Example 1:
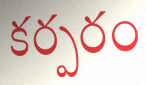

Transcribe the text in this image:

కర్పరం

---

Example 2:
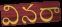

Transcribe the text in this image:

వినరా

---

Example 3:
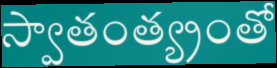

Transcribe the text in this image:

స్వాతంత్య్రంతో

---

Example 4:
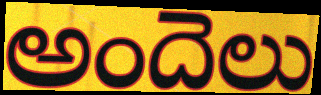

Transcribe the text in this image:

అందెలు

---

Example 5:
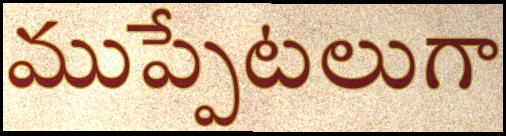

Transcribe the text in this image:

ముప్పేటలుగా